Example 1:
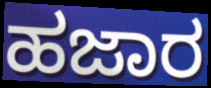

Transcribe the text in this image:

ಹಜಾರ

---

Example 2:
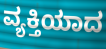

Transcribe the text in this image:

ವ್ಯಕ್ತಿಯಾದ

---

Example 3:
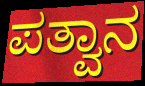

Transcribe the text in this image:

ಪತ್ವಾನ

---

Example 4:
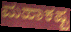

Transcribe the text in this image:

ಮಹಾಕಷ್ಟ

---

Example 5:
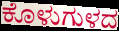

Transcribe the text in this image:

ಕೊಳುಗುಳದ